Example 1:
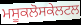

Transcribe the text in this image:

ਮਸੂਕਲੋਸਕੇਲਟਲ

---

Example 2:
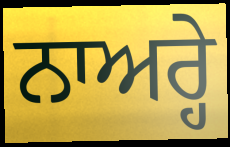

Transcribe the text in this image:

ਨਾਅਰ੍ਹੇ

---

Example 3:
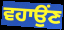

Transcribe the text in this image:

ਵਹਾਉਂਣ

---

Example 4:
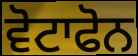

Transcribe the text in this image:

ਵੋਟਾਫੋਨ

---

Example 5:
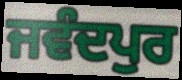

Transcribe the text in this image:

ਜਵੰਦਪੁਰ